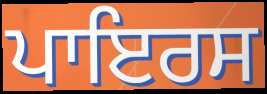
ਪਾਇਰਸ